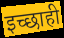
इच्छाही